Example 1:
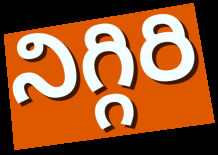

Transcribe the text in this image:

నిగ్గిరి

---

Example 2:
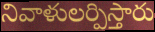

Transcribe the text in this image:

నివాళులర్పిస్తారు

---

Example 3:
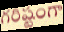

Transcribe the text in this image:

గరిష్టంగా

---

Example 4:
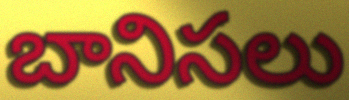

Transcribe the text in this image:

బానిసలు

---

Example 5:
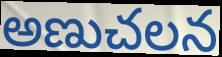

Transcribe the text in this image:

అణుచలన